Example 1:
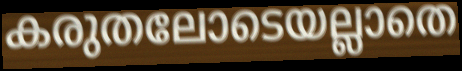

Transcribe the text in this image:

കരുതലോടെയല്ലാതെ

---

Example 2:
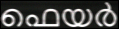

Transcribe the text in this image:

ഫെയർ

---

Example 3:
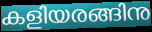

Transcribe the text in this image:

കളിയരങ്ങിനു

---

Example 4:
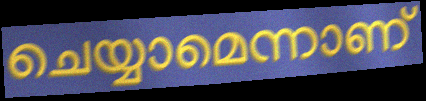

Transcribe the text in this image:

ചെയ്യാമെന്നാണ്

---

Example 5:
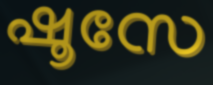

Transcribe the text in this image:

ഷൂസേ